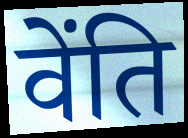
वेंति